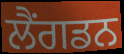
ਲੈਂਗਡਨ